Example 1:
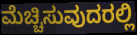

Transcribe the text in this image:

ಮೆಚ್ಚಿಸುವುದರಲ್ಲಿ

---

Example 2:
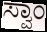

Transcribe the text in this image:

ಸ್ವಾಂ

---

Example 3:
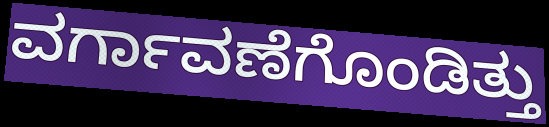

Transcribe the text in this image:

ವರ್ಗಾವಣೆಗೊಂಡಿತ್ತು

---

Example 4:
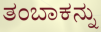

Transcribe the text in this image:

ತಂಬಾಕನ್ನು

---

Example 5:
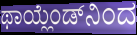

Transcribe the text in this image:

ಥಾಯ್ಲೆಂಡ್‌ನಿಂದ